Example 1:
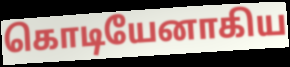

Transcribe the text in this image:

கொடியேனாகிய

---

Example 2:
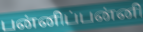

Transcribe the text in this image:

பன்னிப்பன்னி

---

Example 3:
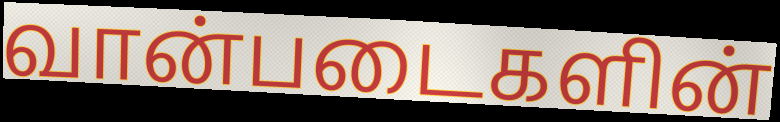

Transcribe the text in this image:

வான்படைகளின்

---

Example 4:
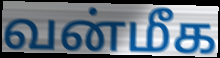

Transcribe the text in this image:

வன்மீக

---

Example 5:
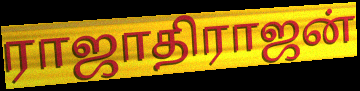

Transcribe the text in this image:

ராஜாதிராஜன்